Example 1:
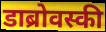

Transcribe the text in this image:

डाब्रोवस्की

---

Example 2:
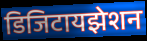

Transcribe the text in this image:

डिजिटायझेशन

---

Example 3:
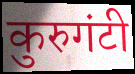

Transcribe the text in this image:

कुरुगंटी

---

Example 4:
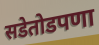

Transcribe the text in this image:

सडेतोडपणा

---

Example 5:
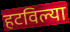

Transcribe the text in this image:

हटविल्या